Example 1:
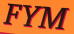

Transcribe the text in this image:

FYM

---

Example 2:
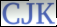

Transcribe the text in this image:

CJK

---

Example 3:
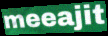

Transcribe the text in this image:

meeajit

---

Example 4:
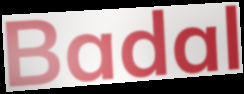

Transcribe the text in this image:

Badal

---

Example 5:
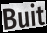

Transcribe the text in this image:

Buit